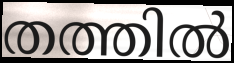
തത്തിൽ